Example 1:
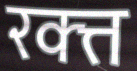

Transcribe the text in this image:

रक्त्त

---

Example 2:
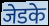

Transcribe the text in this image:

जेडके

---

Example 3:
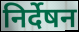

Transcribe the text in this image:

निर्देषन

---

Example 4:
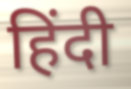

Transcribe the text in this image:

हिंदी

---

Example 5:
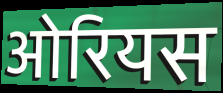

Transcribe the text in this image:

ओरियस